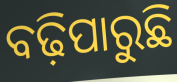
ବଢ଼ିପାରୁଛି